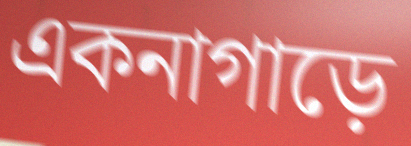
একনাগাড়ে